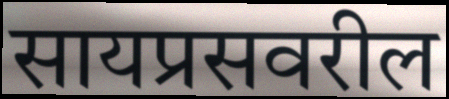
सायप्रसवरील